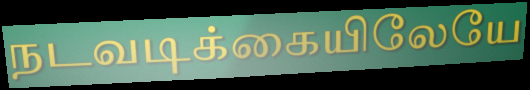
நடவடிக்கையிலேயே